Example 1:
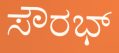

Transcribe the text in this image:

ಸೌರಭ್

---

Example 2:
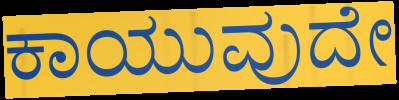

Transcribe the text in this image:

ಕಾಯುವುದೇ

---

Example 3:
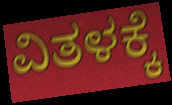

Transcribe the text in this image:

ವಿತಳಕ್ಕೆ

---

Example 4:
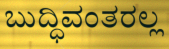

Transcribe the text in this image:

ಬುದ್ಧಿವಂತರಲ್ಲ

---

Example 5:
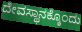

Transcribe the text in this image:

ದೇವಸ್ಥಾನಕ್ಕೊಂದು